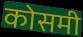
कोसमी